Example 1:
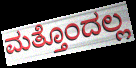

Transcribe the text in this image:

ಮತ್ತೊಂದಲ್ಲ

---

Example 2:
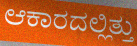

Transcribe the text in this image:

ಆಕಾರದಲ್ಲಿತ್ತು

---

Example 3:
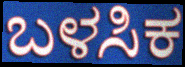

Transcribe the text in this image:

ಬಳಸಿಕ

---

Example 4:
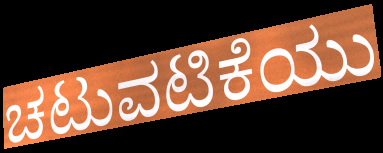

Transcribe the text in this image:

ಚಟುವಟಿಕೆಯು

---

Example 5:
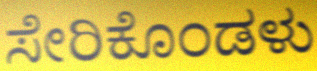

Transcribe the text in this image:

ಸೇರಿಕೊಂಡಳು